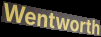
Wentworth